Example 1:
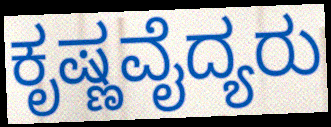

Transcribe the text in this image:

ಕೃಷ್ಣವೈದ್ಯರು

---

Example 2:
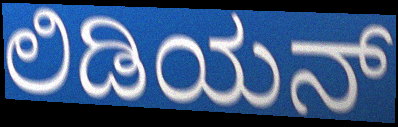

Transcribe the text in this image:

ಲಿಡಿಯನ್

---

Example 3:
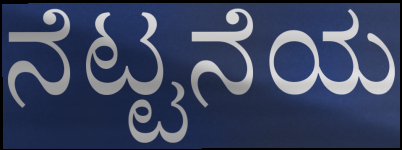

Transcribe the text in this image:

ನೆಟ್ಟನೆಯ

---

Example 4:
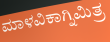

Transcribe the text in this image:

ಮಾಳವಿಕಾಗ್ನಿಮಿತ್ರ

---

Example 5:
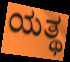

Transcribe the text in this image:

ಯತ್ಥ